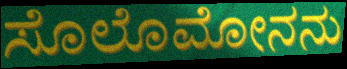
ಸೊಲೊಮೋನನು